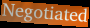
Negotiated